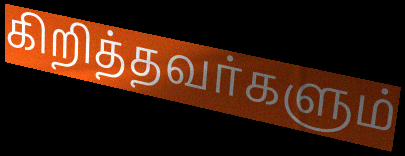
கிறித்தவர்களும்